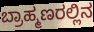
ಬ್ರಾಹ್ಮಣರಲ್ಲಿನ